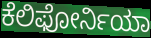
ಕೆಲಿಫೋರ್ನಿಯಾ